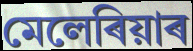
মেলেৰিয়াৰ